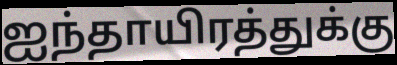
ஐந்தாயிரத்துக்கு